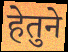
हेतुने